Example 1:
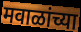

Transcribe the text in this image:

मवाळांच्या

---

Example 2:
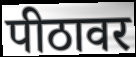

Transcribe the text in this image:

पीठावर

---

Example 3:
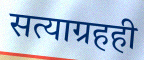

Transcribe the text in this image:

सत्याग्रहही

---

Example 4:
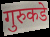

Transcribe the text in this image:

गुरुकडे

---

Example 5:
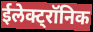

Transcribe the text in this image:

ईलेक्ट्रॉनिक